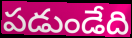
పడుండేది